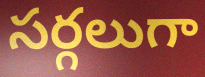
సర్గలుగా